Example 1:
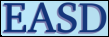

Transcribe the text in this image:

EASD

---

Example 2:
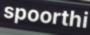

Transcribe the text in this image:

spoorthi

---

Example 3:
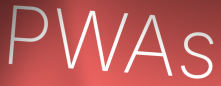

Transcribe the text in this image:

PWAs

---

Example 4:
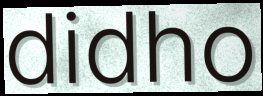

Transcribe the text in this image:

didho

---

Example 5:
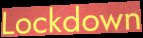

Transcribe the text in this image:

Lockdown